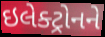
ઇલેક્ટ્રોનને